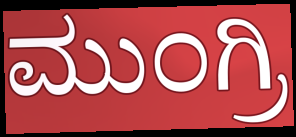
ಮುಂಗ್ರಿ